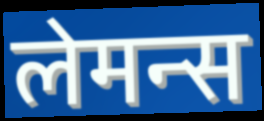
लेमन्स